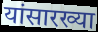
यांसारख्‍या